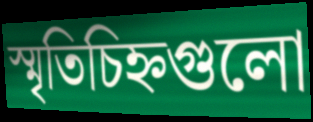
স্মৃতিচিহ্নগুলো